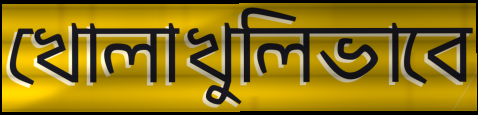
খোলাখুলিভাবে